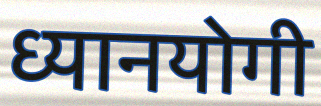
ध्यानयोगी